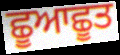
ਛੂਆਛੂਤ